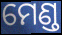
ମେଣ୍ଡ